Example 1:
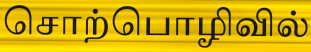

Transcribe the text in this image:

சொற்பொழிவில்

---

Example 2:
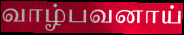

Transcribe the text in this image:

வாழ்பவனாய்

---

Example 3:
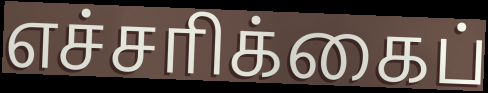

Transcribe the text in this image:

எச்சரிக்கைப்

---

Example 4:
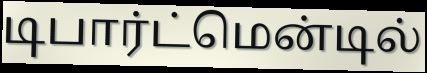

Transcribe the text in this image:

டிபார்ட்மென்டில்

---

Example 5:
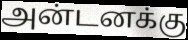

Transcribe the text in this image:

அன்டனக்கு